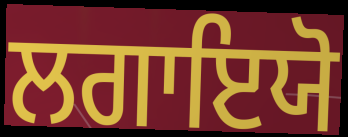
ਲਗਾਇਯੋ